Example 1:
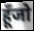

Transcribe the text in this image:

हूँजो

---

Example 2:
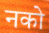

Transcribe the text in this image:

नको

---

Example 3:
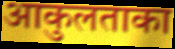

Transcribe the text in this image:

आकुलताका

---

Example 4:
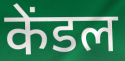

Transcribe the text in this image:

केंडल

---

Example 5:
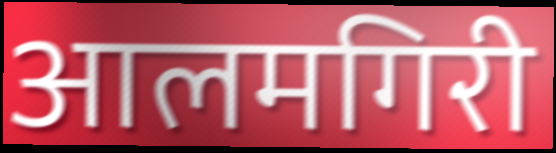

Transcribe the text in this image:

आलमगिरी